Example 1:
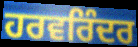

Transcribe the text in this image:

ਹਰਵਰਿੰਦਰ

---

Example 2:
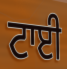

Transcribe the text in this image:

ਟਾਈ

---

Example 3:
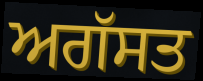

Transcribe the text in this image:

ਅਗੱਸਤ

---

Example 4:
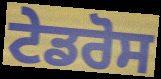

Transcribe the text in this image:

ਟੇਡਰੋਸ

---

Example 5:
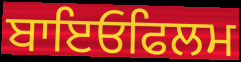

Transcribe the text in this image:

ਬਾਇਓਫਿਲਮ